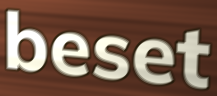
beset